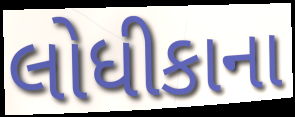
લોધીકાના